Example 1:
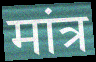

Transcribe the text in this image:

मांत्र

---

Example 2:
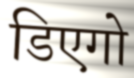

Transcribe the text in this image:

डिएगो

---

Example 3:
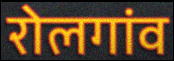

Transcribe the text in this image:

रोलगांव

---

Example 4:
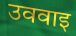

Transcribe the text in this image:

उववाइ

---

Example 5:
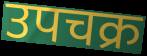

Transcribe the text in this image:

उपचक्र